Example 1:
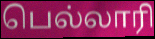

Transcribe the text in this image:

பெல்லாரி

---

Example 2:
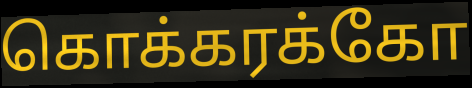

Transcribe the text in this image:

கொக்கரக்கோ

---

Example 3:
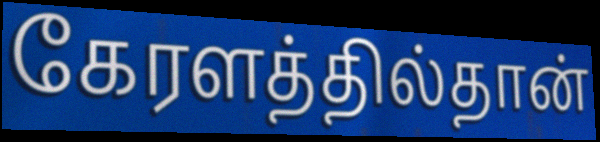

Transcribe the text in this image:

கேரளத்தில்தான்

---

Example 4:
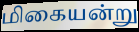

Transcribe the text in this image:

மிகையன்று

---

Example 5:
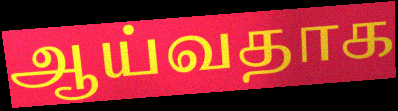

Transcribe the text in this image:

ஆய்வதாக